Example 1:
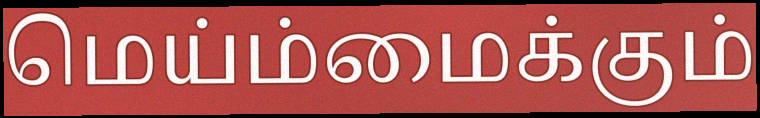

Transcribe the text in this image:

மெய்ம்மைக்கும்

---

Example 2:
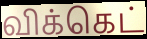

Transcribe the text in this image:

விக்கெட்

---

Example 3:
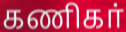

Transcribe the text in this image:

கணிகர்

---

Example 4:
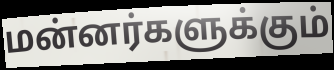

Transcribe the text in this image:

மன்னர்களுக்கும்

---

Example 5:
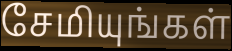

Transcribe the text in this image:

சேமியுங்கள்